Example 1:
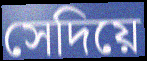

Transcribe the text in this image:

সেদিয়ে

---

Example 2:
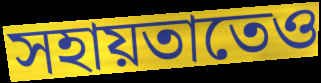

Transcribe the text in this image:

সহায়তাতেও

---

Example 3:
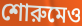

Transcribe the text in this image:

শোরুমেও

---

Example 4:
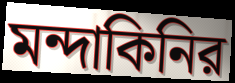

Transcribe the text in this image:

মন্দাকিনির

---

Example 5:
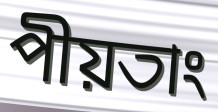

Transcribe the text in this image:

পীয়তাং